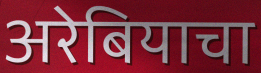
अरेबियाचा